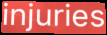
injuries